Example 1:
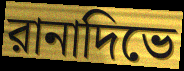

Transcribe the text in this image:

রানাদিভে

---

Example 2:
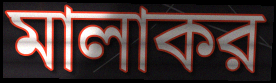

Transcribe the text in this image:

মালাকর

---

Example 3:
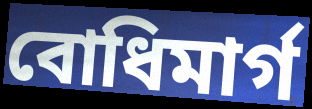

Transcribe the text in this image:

বোধিমার্গ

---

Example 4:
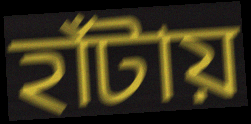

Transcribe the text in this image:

হাঁটায়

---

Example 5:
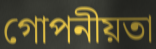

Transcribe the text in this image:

গোপনীয়তা